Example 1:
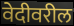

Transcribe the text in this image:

वेदीवरील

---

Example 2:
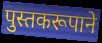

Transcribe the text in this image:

पुस्तकरूपाने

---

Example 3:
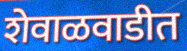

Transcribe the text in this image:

शेवाळवाडीत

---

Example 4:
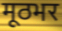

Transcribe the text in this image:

मूठभर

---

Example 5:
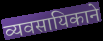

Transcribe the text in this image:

व्यवसायिकाने